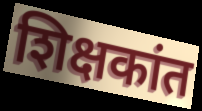
शिक्षकांत